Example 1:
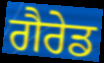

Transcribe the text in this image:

ਗੈਰੇਡ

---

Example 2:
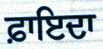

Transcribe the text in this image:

ਫ਼ਾਇਦਾ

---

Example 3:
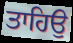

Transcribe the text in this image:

ਤਾਹਿਉ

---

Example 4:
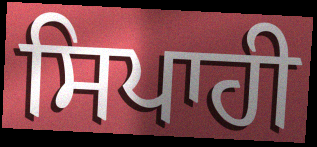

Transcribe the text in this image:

ਸਿਪਾਹੀ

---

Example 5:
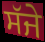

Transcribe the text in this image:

ਸੱਜੇ